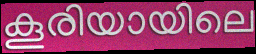
കൂരിയായിലെ